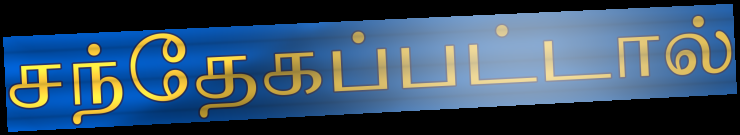
சந்தேகப்பட்டால்